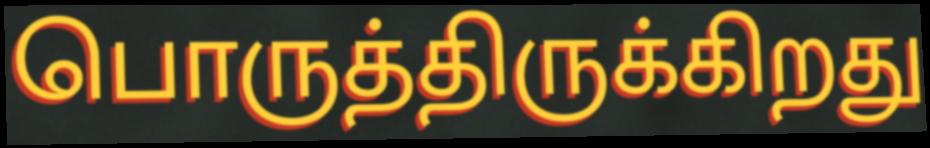
பொருத்திருக்கிறது